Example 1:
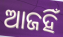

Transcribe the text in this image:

ଆଜହିଁ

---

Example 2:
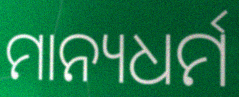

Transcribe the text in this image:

ମାନ୍ୟଧର୍ମ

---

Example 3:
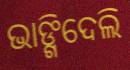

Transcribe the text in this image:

ଭାଙ୍ଗିଦେଲି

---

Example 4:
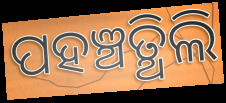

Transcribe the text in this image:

ପହଞ୍ଚତ୍ଥିଲି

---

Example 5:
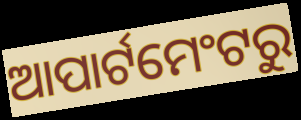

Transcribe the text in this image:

ଆପାର୍ଟମେଂଟରୁ